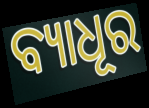
ବ୍ୟାଧୂର